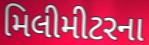
મિલીમીટરના